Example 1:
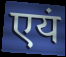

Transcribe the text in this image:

एयं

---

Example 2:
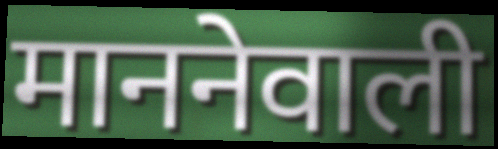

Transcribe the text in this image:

माननेवाली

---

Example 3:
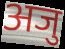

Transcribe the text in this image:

अजु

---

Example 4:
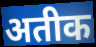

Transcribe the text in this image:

अतीक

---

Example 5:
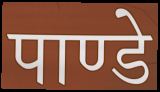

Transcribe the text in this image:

पाण्डे